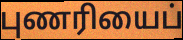
புணரியைப்